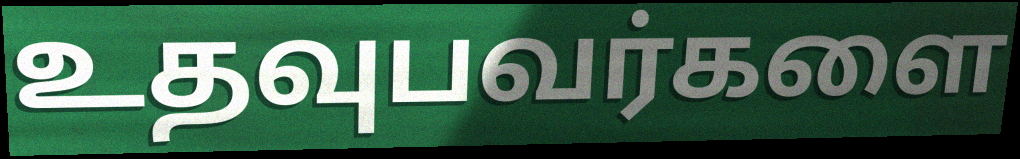
உதவுபவர்களை